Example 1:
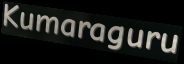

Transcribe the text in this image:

Kumaraguru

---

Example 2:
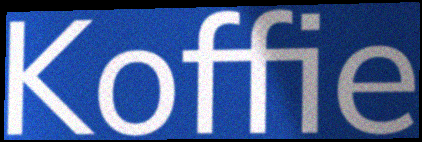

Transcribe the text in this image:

Koffie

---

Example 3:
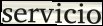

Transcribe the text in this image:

servicio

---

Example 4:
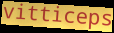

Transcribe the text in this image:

vitticeps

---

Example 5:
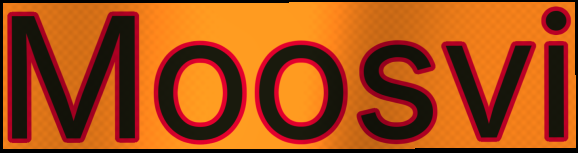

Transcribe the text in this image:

Moosvi